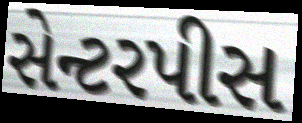
સેન્ટરપીસ